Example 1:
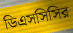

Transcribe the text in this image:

ডিএসসিসির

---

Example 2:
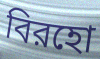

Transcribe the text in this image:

বিরহো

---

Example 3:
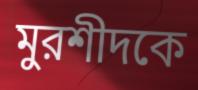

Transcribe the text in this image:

মুরশীদকে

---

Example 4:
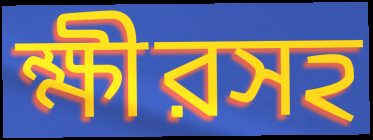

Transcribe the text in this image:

ক্ষীরসহ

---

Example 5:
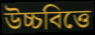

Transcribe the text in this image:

উচ্চবিত্তে